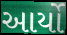
આર્યો